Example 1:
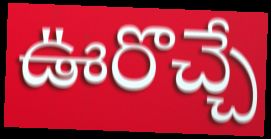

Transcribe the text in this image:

ఊరొచ్చే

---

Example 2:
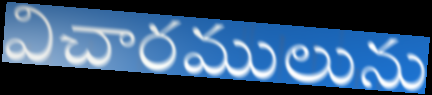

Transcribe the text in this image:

విచారములును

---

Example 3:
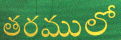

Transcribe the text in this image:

తరములో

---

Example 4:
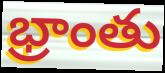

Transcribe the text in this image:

భ్రాంతు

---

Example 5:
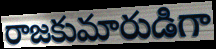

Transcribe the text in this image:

రాజకుమారుడిగా